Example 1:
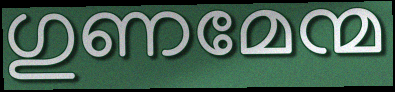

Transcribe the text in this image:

ഗുണമേന്മ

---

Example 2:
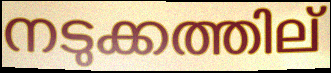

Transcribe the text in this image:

നടുക്കത്തില്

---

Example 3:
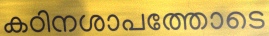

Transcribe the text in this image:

കഠിനശാപത്തോടെ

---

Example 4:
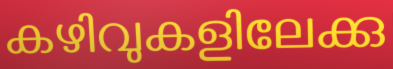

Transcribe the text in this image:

കഴിവുകളിലേക്കു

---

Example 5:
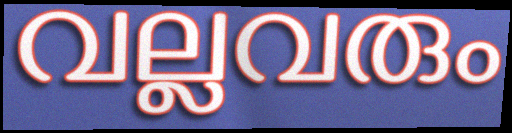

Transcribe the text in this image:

വല്ലവരും